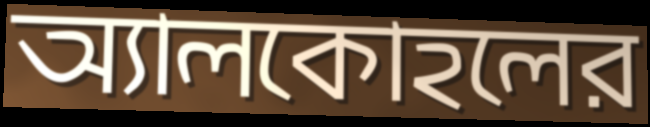
অ্যালকোহলের